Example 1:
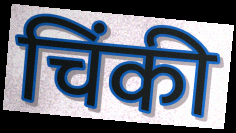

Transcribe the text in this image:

चिंकी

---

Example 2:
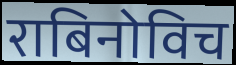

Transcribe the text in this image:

राबिनोविच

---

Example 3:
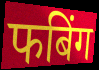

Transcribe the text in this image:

फबिंग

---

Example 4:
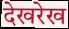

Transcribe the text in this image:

देखरेख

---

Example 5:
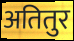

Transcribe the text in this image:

अतितुर